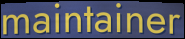
maintainer